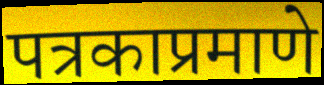
पत्रकाप्रमाणे